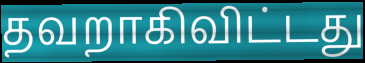
தவறாகிவிட்டது